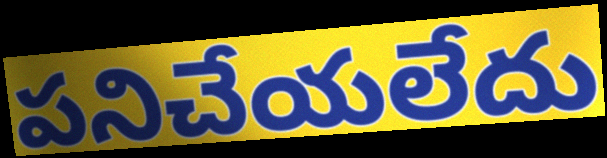
పనిచేయలేదు